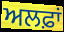
ਅਲਫ਼ਾਂ